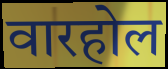
वारहोल